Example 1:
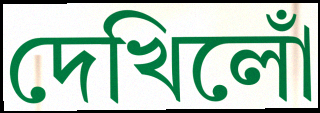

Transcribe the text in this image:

দেখিলোঁ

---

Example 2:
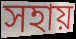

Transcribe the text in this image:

সহায়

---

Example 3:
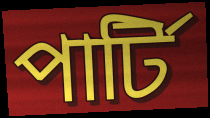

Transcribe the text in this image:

পাৰ্টি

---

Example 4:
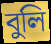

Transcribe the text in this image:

বুলি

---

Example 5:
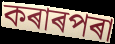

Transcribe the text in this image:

কৰাৰপৰা